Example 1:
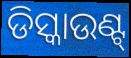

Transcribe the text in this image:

ଡିସ୍କାଉଣ୍ଟ୍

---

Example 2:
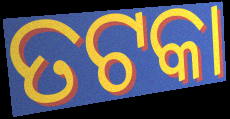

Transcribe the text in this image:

ତଟକା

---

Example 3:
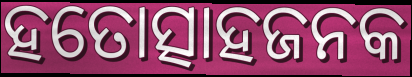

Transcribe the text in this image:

ହତୋତ୍ସାହଜନକ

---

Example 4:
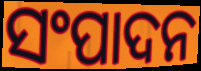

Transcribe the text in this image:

ସଂପାଦନ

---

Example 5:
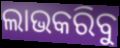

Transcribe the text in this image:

ଲାଭକରିବୁ